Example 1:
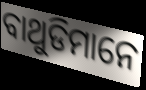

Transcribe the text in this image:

ବାଥୁଡିମାନେ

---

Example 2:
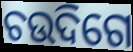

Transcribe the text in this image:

ଚଉଦିଗେ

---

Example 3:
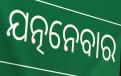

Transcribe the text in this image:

ଯତ୍ନନେବାର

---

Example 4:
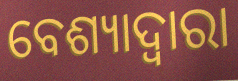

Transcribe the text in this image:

ବେଶ୍ୟାଦ୍ୱାରା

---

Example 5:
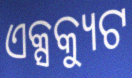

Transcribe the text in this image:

ଏକ୍ସକ୍ୟୁଟ